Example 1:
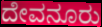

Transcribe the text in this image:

ದೇವನೂರು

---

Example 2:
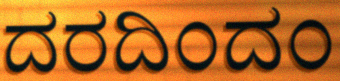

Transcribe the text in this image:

ದರದಿಂದಂ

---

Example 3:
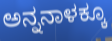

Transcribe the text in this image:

ಅನ್ನನಾಳಕ್ಕೂ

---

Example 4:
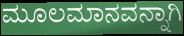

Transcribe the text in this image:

ಮೂಲಮಾನವನ್ನಾಗಿ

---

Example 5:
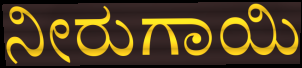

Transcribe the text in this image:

ನೀರುಗಾಯಿ